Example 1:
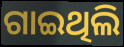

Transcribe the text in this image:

ଗାଇଥିଲି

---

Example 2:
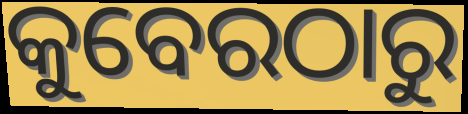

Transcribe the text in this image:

କୁବେରଠାରୁ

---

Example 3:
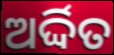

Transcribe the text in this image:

ଅର୍ଦ୍ଦିତ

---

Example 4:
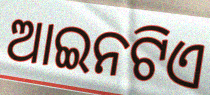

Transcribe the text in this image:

ଆଇନଟିଏ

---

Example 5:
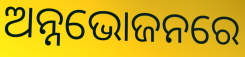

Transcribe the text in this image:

ଅନ୍ନଭୋଜନରେ